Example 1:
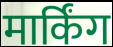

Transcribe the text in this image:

मार्किंग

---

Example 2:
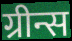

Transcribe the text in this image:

ग्रीन्स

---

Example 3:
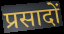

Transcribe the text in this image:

प्रसादों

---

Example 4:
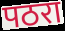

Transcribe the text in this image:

पठरा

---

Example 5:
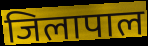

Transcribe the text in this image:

जिलापाल